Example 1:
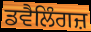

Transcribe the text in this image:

ਡਵੈਲਿੰਗਜ਼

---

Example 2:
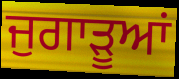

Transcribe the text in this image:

ਜੁਗਾੜੂਆਂ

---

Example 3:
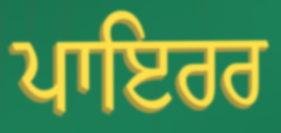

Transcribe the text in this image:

ਪਾਇਰਰ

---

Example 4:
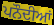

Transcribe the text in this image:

ਪਨੌਦੀਆਂ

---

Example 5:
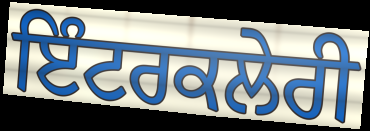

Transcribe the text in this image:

ਇੰਟਰਕਲੇਰੀ